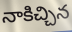
నాకిచ్చిన